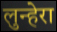
लुन्हेरा